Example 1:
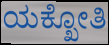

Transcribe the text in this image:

ಯಕ್ಖೋತಿ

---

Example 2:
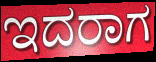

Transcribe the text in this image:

ಇದರಾಗ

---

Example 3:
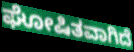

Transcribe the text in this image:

ಘೋಷಿತವಾಗಿದೆ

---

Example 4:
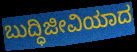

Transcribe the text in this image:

ಬುದ್ಧಿಜೀವಿಯಾದ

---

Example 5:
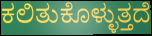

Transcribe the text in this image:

ಕಲಿತುಕೊಳ್ಳುತ್ತದೆ